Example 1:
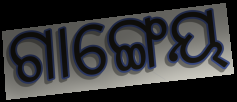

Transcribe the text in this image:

ଗାଙ୍ଗେୟ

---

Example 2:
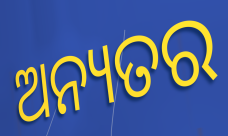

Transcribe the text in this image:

ଅନ୍ୟତର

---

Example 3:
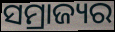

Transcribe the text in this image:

ସମ୍ରାଜ୍ୟର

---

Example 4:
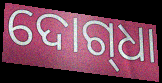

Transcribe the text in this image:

ଦୋଗ୍‌ଧା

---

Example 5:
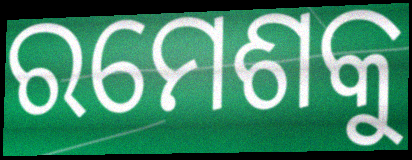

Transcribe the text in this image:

ରମେଶକୁ